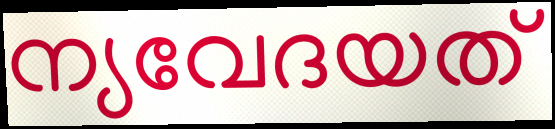
ന്യവേദയത്